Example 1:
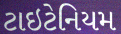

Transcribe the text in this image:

ટાઇટેનિયમ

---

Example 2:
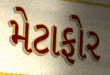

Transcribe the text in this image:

મેટાફોર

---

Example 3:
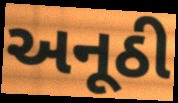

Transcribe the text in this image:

અનૂઠી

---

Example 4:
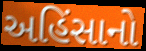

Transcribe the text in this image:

અહિંસાનો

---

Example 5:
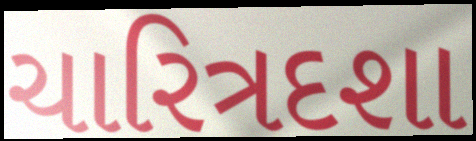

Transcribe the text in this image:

ચારિત્રદશા